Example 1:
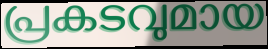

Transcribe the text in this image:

പ്രകടവുമായ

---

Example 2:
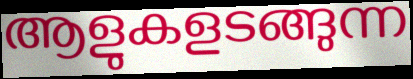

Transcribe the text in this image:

ആളുകളടങ്ങുന്ന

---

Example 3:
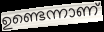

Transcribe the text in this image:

ഉണ്ടെന്നാണ്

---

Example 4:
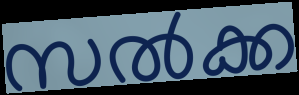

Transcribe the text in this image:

സൽക്ക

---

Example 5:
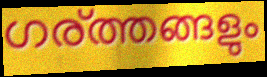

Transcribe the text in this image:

ഗര്ത്തങ്ങളും